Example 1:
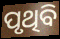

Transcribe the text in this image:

ପୃଥିବି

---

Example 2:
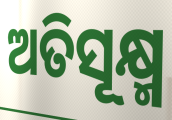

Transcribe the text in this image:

ଅତିସୂକ୍ଷ୍ମ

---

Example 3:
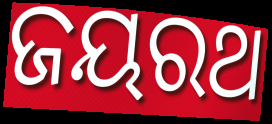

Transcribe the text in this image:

ଜୟରଥ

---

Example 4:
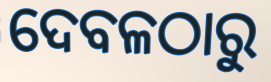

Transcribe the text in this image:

ଦେବଳଠାରୁ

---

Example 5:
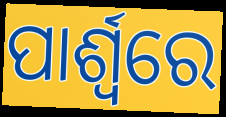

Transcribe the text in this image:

ପାର୍ଶ୍ୱରେ